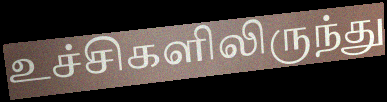
உச்சிகளிலிருந்து